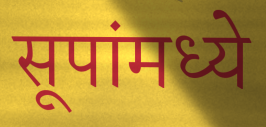
सूपांमध्ये